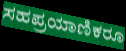
ಸಹಪ್ರಯಾಣಿಕರೂ